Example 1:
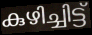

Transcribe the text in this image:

കുഴിച്ചിട്ട്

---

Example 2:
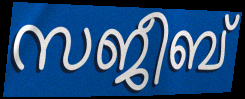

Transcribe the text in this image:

സജീബ്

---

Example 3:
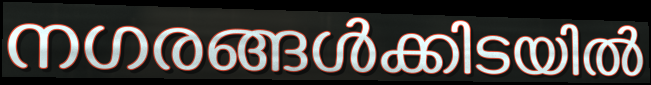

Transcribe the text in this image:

നഗരങ്ങൾക്കിടയിൽ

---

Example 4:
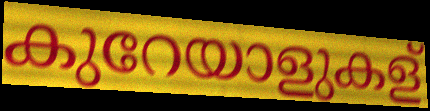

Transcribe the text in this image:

കുറേയാളുകള്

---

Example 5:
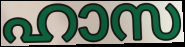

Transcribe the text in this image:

ഹാസ